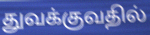
துவக்குவதில்